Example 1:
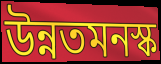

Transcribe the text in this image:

উন্নতমনস্ক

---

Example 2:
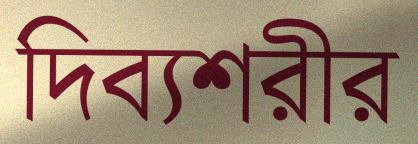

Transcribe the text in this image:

দিব্যশরীর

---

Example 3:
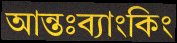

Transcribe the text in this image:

আন্তঃব্যাংকিং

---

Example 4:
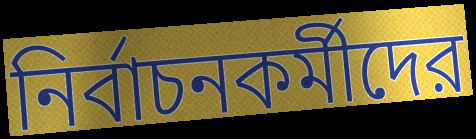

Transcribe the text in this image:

নির্বাচনকর্মীদের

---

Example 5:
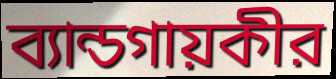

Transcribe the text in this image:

ব্যান্ডগায়কীর